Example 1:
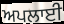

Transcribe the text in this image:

ਅਪਲਾਈ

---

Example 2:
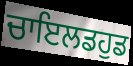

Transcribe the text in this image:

ਚਾਇਲਡਹੁਡ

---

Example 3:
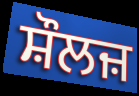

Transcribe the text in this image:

ਸ਼ੌਲਜ਼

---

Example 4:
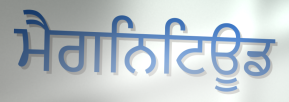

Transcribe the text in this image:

ਮੈਗਨਿਟਿਊਡ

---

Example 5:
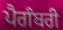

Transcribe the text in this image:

ਪੈਗੰਬਰੀ